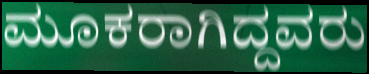
ಮೂಕರಾಗಿದ್ದವರು